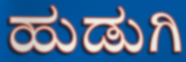
ಹುಡುಗಿ